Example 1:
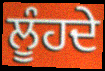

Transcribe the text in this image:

ਲੂੰਹਦੇ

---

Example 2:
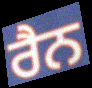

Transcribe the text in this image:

ਰੈਨ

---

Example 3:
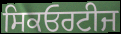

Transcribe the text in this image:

ਸਿਕਓਰਟੀਜ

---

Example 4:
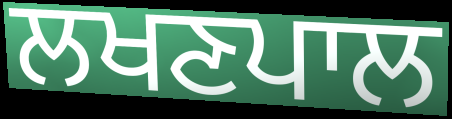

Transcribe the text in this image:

ਲਖਣਪਾਲ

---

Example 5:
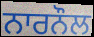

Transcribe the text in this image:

ਨਾਰਨੌਲ